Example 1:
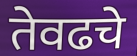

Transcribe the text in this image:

तेवढचे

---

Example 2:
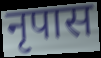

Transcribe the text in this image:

नृपास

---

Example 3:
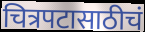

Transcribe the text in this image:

चित्रपटासाठीचं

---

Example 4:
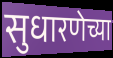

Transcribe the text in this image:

सुधारणेच्या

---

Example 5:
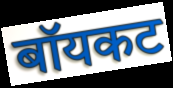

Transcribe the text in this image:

बॉयकट